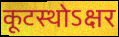
कूटस्थोऽक्षर